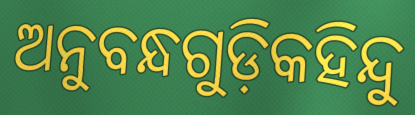
ଅନୁବନ୍ଧଗୁଡ଼ିକହିନ୍ଦୁ